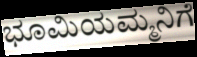
ಭೂಮಿಯಮ್ಮನಿಗೆ